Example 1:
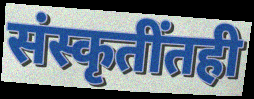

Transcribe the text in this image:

संस्कृतींतही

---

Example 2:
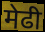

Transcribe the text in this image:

मेढी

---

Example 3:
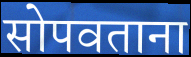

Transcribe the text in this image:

सोपवताना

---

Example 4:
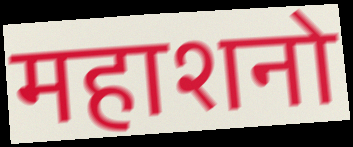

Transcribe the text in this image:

महाशनो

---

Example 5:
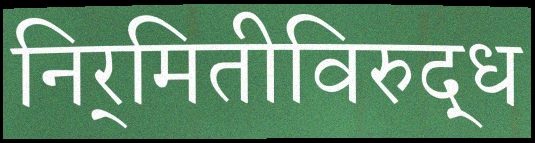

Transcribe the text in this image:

निर्मितीविरुद्ध